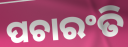
ପଚାରଂତି